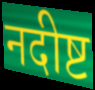
नदीष्ट